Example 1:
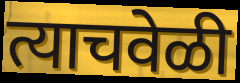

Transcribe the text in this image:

त्याचवेळी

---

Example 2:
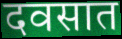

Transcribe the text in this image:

दवसात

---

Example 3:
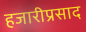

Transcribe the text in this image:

हजारीप्रसाद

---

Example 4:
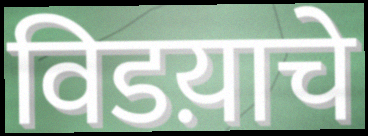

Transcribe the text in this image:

विडय़ाचे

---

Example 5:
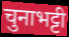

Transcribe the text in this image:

चुनाभट्टी